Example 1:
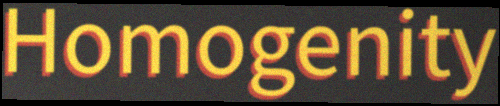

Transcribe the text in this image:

Homogenity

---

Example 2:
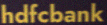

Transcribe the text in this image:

hdfcbank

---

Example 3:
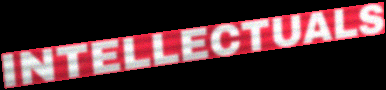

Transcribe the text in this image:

INTELLECTUALS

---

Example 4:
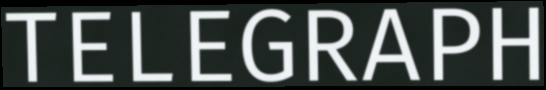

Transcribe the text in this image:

TELEGRAPH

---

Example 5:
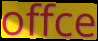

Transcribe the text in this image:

offce